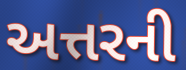
અત્તરની